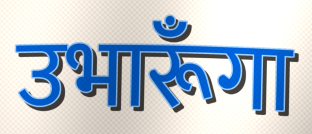
उभारूँगा